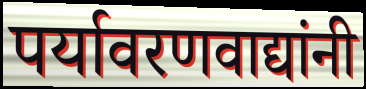
पर्यावरणवाद्यांनी